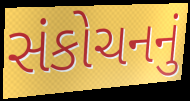
સંકોચનનું